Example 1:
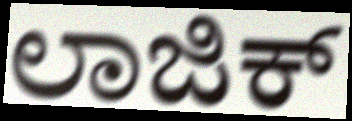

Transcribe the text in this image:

ಲಾಜಿಕ್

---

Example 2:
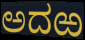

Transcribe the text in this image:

ಅದಱ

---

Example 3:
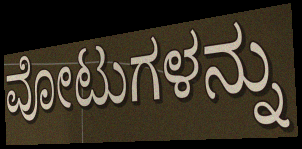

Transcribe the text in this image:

ವೋಟುಗಳನ್ನು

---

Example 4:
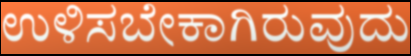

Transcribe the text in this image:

ಉಳಿಸಬೇಕಾಗಿರುವುದು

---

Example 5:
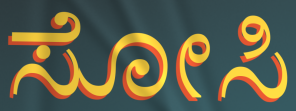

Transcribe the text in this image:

ಸೋಸಿ